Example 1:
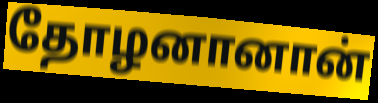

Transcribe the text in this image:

தோழனானான்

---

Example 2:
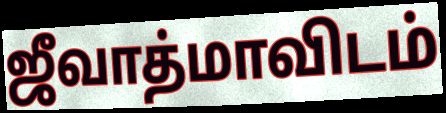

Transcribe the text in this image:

ஜீவாத்மாவிடம்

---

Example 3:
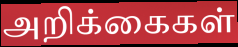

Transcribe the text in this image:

அறிக்கைகள்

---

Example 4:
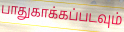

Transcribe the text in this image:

பாதுகாக்கப்படவும்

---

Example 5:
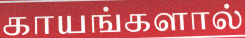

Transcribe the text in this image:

காயங்களால்